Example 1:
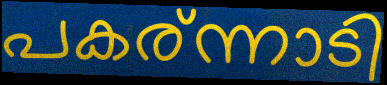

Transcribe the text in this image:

പകര്ന്നാടി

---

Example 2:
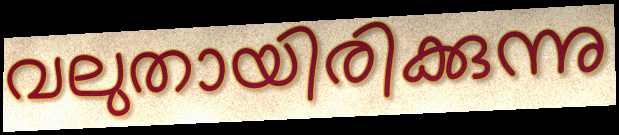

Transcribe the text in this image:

വലുതായിരിക്കുന്നു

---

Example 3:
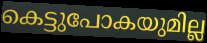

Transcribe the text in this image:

കെട്ടുപോകയുമില്ല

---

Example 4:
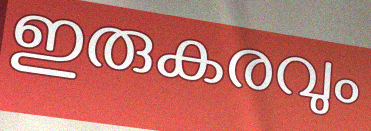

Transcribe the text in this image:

ഇരുകരവും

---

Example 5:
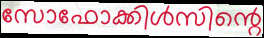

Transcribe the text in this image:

സോഫോക്കിൾസിന്റെ